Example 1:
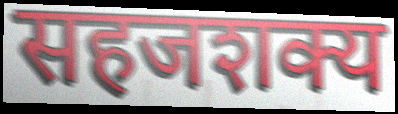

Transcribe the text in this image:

सहजशक्य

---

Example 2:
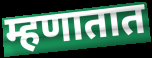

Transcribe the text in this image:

म्हणातात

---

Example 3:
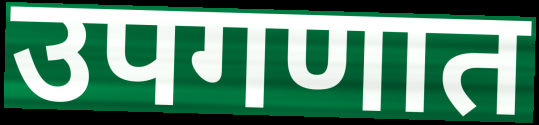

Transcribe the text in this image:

उपगणात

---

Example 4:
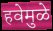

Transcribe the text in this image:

हवेमुळे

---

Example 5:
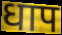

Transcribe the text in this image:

धाप